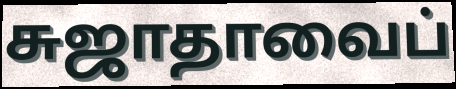
சுஜாதாவைப்